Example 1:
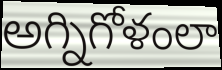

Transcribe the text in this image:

అగ్నిగోళంలా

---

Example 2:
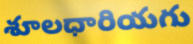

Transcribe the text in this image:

శూలధారియగు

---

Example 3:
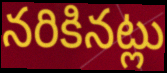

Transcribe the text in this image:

నరికినట్లు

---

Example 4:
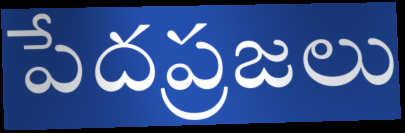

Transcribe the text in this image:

పేదప్రజలు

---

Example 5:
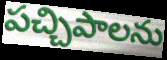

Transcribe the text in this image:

పచ్చిపాలను